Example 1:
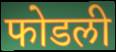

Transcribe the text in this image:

फोडली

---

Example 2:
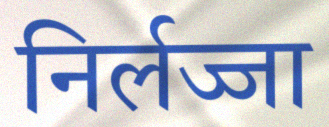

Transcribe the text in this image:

निर्लज्जा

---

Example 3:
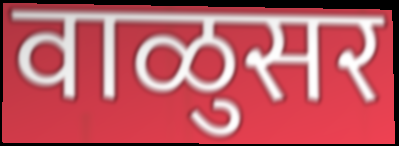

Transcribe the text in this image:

वाळुसर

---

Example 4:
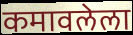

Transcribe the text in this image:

कमावलेला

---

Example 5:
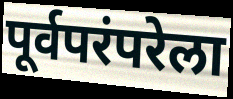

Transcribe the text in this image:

पूर्वपरंपरेला